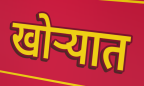
खोर्‍यात